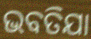
ଭବତିଯା